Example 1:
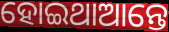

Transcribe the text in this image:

ହୋଇଥାଆନ୍ତେ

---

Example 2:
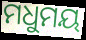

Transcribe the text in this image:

ମଧୁମୟ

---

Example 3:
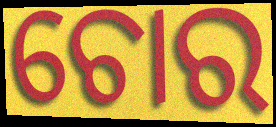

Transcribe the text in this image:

ଚୋର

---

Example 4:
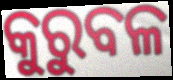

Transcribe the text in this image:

କୁରୁବଳ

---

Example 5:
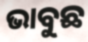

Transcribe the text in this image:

ଭାବୁଛ